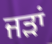
ਜੜਾਂ